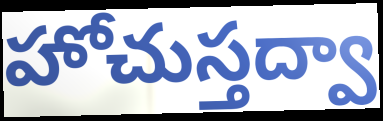
హోచుస్తద్వా